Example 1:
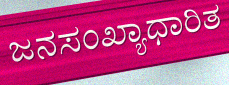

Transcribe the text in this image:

ಜನಸಂಖ್ಯಾಧಾರಿತ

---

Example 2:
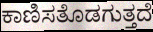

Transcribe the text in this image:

ಕಾಣಿಸತೊಡಗುತ್ತದೆ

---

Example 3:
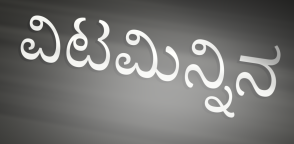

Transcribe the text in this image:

ವಿಟಮಿನ್ನಿನ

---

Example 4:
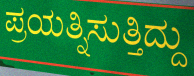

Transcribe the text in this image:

ಪ್ರಯತ್ನಿಸುತ್ತಿದ್ದು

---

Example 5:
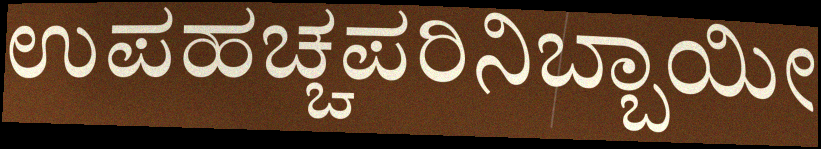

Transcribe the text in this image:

ಉಪಹಚ್ಚಪರಿನಿಬ್ಬಾಯೀ